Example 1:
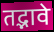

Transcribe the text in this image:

तद्भावे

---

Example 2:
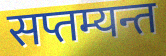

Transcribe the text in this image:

सप्तम्यन्त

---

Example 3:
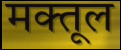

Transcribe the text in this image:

मक्तूल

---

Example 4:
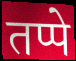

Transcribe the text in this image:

तप्पे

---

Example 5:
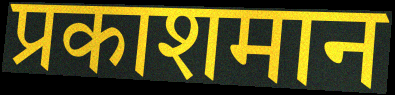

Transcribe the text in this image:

प्रकाशमान